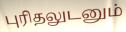
புரிதலுடனும்